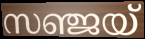
സഞ്ജയ്